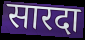
सारदा